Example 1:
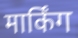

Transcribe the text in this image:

मार्किंग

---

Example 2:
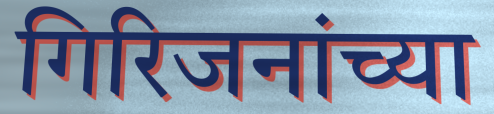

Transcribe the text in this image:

गिरिजनांच्या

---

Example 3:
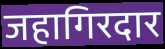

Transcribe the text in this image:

जहागिरदार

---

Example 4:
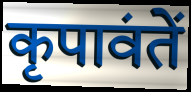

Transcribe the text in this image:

कृपावंतें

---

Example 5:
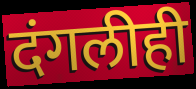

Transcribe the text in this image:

दंगलीही